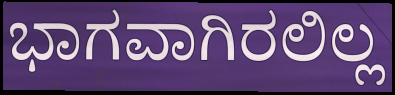
ಭಾಗವಾಗಿರಲಿಲ್ಲ